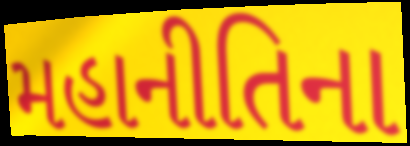
મહાનીતિના